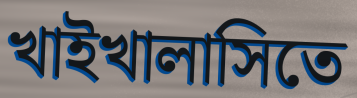
খাইখালাসিতে